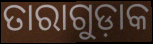
ତାରାଗୁଡ଼ାକ